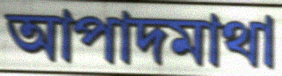
আপাদমাথা